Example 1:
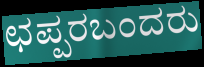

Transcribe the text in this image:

ಛಪ್ಪರಬಂದರು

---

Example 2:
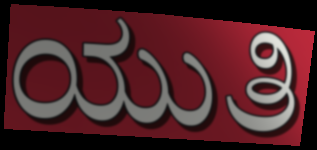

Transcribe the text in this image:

ಯುತಿ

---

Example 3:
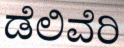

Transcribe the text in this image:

ಡೆಲಿವೆರಿ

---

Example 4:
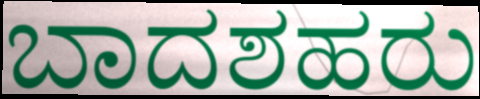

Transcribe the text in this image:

ಬಾದಶಹರು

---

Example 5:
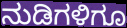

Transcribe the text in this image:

ನುಡಿಗಳಿಗೂ